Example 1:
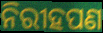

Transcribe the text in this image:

ନିରୀହପଣ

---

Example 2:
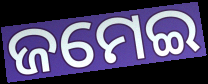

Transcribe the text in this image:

ଜମେଇ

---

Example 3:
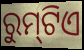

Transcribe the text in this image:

ରୁମ୍‌ଟିଏ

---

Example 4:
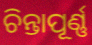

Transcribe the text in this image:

ଚିନ୍ତାପୂର୍ଣ୍ଣ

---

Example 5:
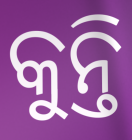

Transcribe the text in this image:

କୁନ୍ତି